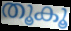
തൂകൂ